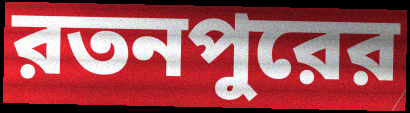
রতনপুরের